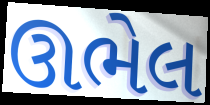
ઊભેલ